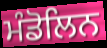
ਮੰਡੋਲਿਨ